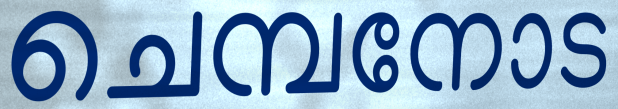
ചെമ്പനോട